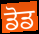
ਡੋਡ